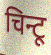
चिन्टू